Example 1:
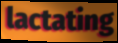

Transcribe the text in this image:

lactating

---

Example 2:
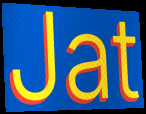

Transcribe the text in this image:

Jat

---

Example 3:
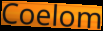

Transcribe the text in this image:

Coelom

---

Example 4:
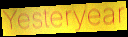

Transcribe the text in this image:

Yesteryear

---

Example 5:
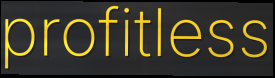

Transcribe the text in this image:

profitless